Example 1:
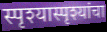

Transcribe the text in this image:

स्पृश्यास्पृश्यांचा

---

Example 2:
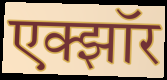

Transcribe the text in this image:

एक्झॉर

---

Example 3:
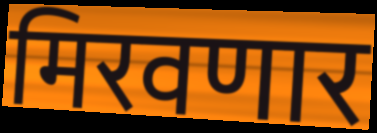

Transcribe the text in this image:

मिरवणार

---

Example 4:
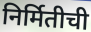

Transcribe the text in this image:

निर्मितीची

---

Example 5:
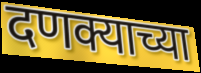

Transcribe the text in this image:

दणक्याच्या